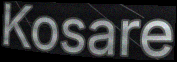
Kosare